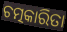
ଚତ୍ମକାରିତା